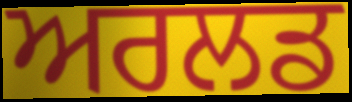
ਅਰਲਡ